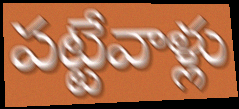
పట్టేవాళ్లు